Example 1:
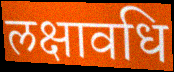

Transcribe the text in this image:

लक्षावधि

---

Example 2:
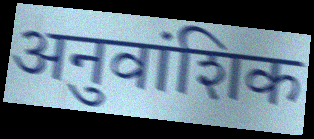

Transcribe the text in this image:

अनुवांशिक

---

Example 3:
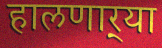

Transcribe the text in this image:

हालणार्या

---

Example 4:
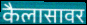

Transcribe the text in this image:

कैलासावर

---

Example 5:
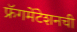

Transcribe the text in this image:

फ्रॅगमेंटेशनची